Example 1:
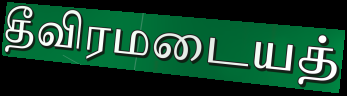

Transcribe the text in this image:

தீவிரமடையத்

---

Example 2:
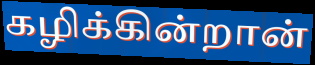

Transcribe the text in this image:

கழிக்கின்றான்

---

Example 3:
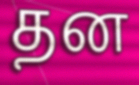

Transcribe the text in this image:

தன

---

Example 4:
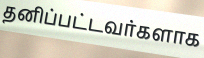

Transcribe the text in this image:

தனிப்பட்டவர்களாக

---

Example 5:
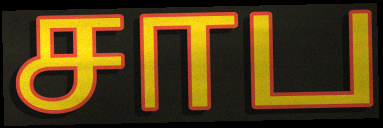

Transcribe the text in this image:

சாப